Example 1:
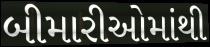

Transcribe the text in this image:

બીમારીઓમાંથી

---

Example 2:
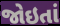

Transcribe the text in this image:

જોઇતાં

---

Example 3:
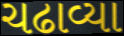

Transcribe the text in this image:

ચઢાવ્યા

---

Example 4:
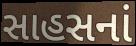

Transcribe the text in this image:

સાહસનાં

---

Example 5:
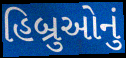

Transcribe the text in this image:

હિબ્રુઓનું